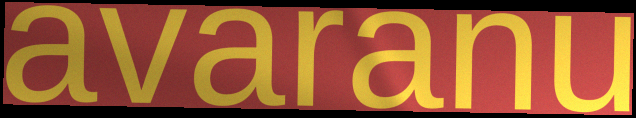
avaranu